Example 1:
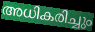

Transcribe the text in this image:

അധികരിച്ചും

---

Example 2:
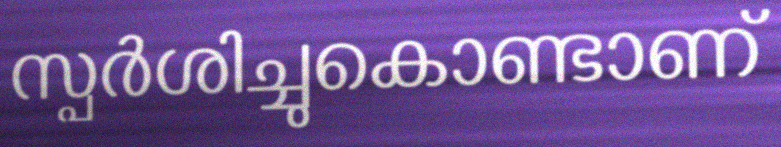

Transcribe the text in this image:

സ്പർശിച്ചുകൊണ്ടാണ്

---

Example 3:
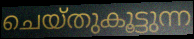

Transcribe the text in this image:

ചെയ്തുകൂട്ടുന്ന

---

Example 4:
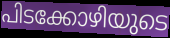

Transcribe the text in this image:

പിടക്കോഴിയുടെ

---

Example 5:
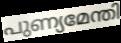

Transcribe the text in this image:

പുണ്യമേന്തി